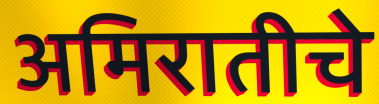
अमिरातीचे